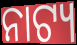
ନାଟ୍ୟ